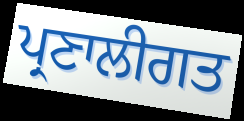
ਪ੍ਰਣਾਲੀਗਤ